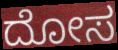
ದೋಸ